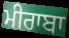
ਮੀਰਾਬਾ